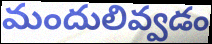
మందులివ్వడం